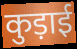
कुड़ाई